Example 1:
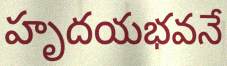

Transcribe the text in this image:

హృదయభవనే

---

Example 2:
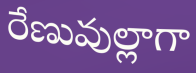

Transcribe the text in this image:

రేణువుల్లాగా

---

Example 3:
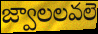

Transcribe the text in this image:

జ్వాలలవలె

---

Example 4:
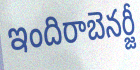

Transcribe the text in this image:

ఇందిరాబెనర్జీ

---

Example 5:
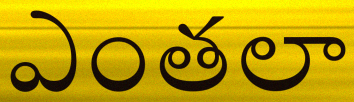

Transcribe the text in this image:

ఎంతలా